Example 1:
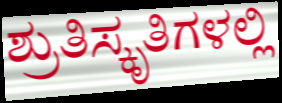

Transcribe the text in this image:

ಶ್ರುತಿಸ್ಕೃತಿಗಳಲ್ಲಿ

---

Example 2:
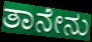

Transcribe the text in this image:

ತಾನೇನು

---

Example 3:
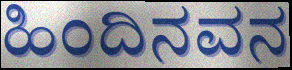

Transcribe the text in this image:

ಹಿಂದಿನವನ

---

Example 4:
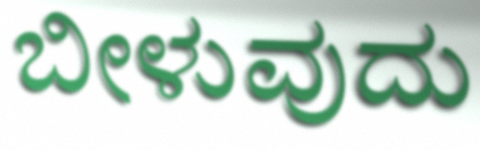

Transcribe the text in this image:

ಬೀಳುವುದು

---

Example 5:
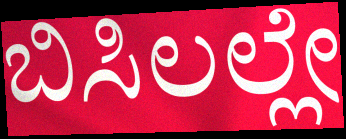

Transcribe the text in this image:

ಬಿಸಿಲಲ್ಲೇ